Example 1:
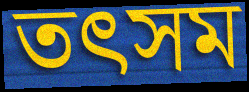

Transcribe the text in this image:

তৎসম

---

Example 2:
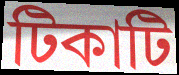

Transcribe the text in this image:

টিকাটি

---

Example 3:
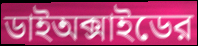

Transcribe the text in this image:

ডাইঅক্সাইডের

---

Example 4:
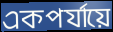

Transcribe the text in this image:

একপর্যায়ে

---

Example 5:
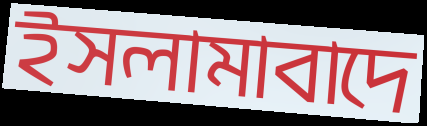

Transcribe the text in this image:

ইসলামাবাদে